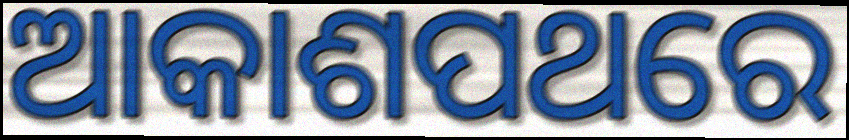
ଆକାଶପଥରେ